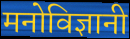
मनोविज्ञानी